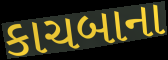
કાચબાના